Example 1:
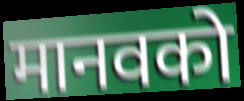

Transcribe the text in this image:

मानवको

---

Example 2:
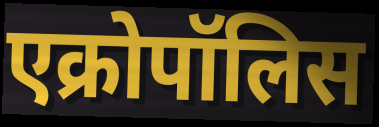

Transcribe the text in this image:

एक्रोपॉलिस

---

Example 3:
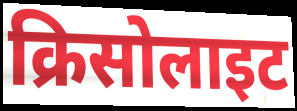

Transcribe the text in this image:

क्रिसोलाइट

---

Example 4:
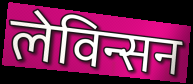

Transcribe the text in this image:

लेविन्सन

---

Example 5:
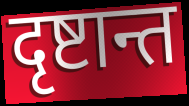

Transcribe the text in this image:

दृष्टान्त